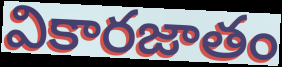
వికారజాతం